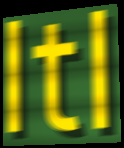
ltl